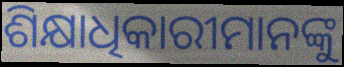
ଶିକ୍ଷାଧିକାରୀମାନଙ୍କୁ